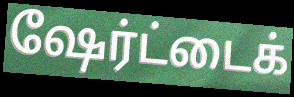
ஷேர்ட்டைக்